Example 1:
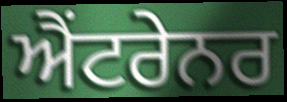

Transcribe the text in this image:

ਐਂਟਰੇਨਰ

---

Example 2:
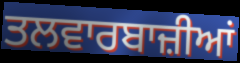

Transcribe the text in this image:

ਤਲਵਾਰਬਾਜ਼ੀਆਂ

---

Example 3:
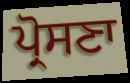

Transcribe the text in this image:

ਪ੍ਰੋਸਣਾ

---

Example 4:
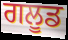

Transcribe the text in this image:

ਗਲੂਡ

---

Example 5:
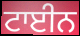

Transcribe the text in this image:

ਟਾਈਨ